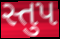
સ્તુપ